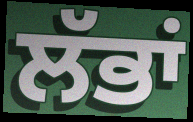
ਲੱਭਾਂ